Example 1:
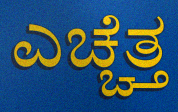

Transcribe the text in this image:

ಎಚ್ಚೆತ್ತ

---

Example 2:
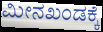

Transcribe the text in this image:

ಮೀನಖಂಡಕ್ಕೆ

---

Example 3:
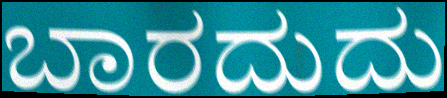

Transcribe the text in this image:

ಬಾರದುದು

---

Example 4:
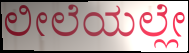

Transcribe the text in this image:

ಲೀಲೆಯಲ್ಲೇ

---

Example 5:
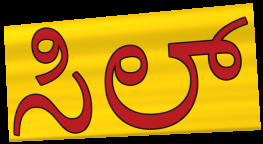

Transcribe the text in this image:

ಸಿಲ್